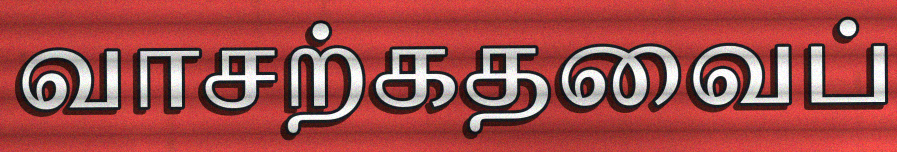
வாசற்கதவைப்